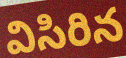
విసిరిన